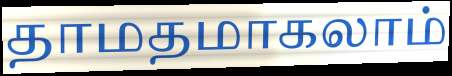
தாமதமாகலாம்